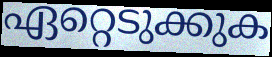
ഏറ്റെടുക്കുക